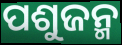
ପଶୁଜନ୍ମ